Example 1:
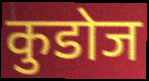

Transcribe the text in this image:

कुडोज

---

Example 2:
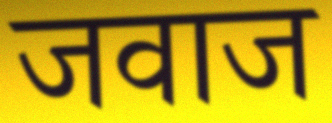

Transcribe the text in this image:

जवाज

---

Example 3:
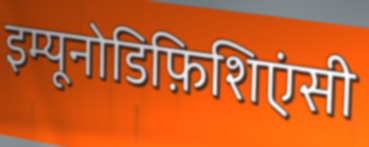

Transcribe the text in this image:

इम्यूनोडिफ़िशिएंसी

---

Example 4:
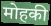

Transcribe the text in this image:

मोहकी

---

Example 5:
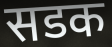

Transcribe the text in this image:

सडक